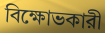
বিক্ষোভকারী